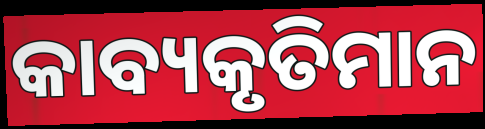
କାବ୍ୟକୃତିମାନ